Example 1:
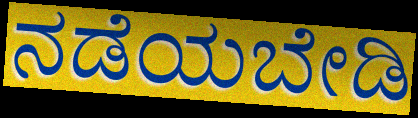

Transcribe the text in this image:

ನಡೆಯಬೇಡಿ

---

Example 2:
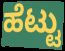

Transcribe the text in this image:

ಹೆಟ್ಟು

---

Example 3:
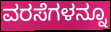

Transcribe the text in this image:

ವರಸೆಗಳನ್ನೂ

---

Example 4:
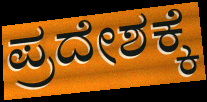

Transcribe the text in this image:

ಪ್ರದೇಶಕ್ಕೆ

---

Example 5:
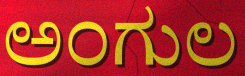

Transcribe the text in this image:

ಅಂಗುಲ